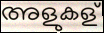
അളുകള്